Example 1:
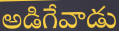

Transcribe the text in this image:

అడిగేవాడు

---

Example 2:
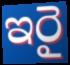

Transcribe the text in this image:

ఇరై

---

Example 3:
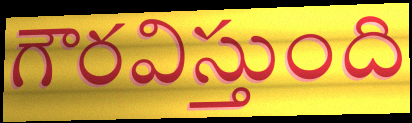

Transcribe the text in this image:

గౌరవిస్తుంది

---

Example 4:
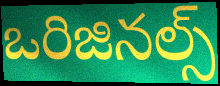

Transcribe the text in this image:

ఒరిజినల్స్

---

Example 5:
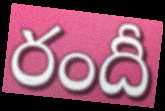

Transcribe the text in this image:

రందీ